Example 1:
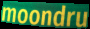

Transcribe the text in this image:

moondru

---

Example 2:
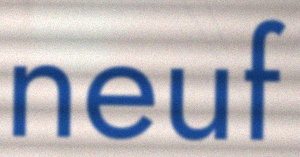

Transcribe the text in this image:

neuf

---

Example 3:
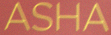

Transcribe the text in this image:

ASHA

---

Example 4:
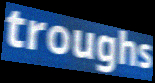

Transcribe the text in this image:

troughs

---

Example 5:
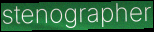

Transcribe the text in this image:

stenographer